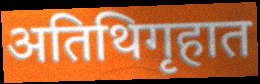
अतिथिगृहात